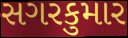
સગરકુમાર